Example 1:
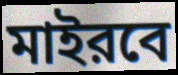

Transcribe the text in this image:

মাইরবে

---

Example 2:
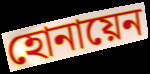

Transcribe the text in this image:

হোনায়েন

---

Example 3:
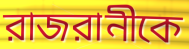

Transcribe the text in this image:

রাজরানীকে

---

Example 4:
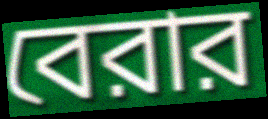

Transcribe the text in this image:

বেরার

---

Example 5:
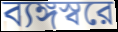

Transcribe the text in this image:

ব্যঙ্গস্বরে